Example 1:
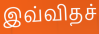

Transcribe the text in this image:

இவ்விதச்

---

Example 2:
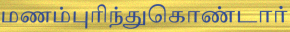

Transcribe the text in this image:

மணம்புரிந்துகொண்டார்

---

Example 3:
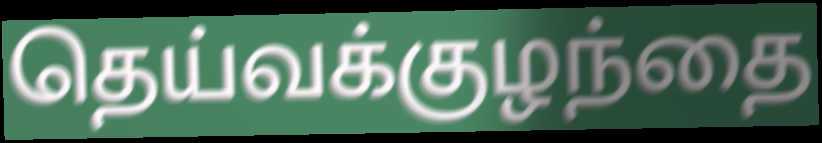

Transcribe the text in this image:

தெய்வக்குழந்தை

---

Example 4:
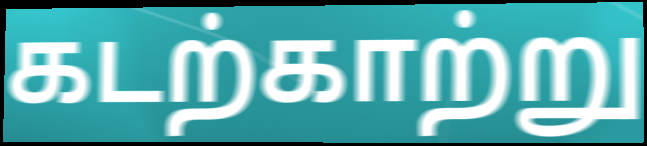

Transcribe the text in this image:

கடற்காற்று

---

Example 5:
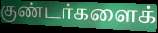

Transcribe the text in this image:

குண்டர்களைக்